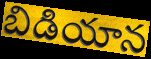
బిడియాన